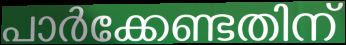
പാർക്കേണ്ടതിന്